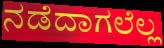
ನಡೆದಾಗಲೆಲ್ಲ